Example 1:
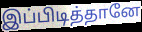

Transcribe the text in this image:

இப்பிடித்தானே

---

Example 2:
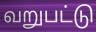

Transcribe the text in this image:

வறுபட்டு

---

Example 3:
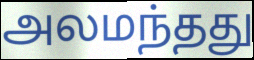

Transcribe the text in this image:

அலமந்தது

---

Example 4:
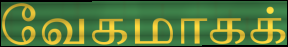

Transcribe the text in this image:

வேகமாகக்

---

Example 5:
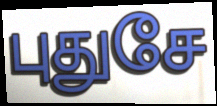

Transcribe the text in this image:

புதுசே